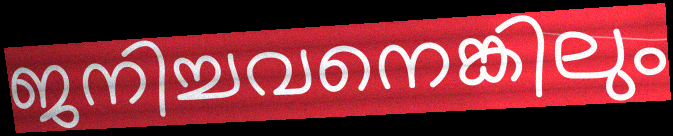
ജനിച്ചവനെങ്കിലും